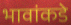
भावांकडे